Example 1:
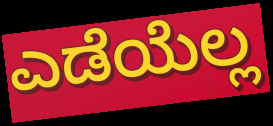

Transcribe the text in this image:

ಎಡೆಯೆಲ್ಲ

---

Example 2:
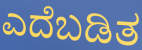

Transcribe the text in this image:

ಎದೆಬಡಿತ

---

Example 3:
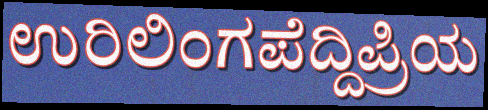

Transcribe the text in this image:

ಉರಿಲಿಂಗಪೆದ್ದಿಪ್ರಿಯ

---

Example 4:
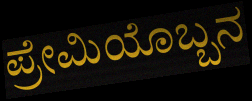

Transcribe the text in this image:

ಪ್ರೇಮಿಯೊಬ್ಬನ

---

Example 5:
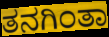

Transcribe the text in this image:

ತನಗಿಂತಾ